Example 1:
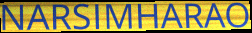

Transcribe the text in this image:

NARSIMHARAO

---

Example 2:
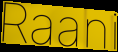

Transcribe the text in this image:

Raani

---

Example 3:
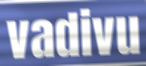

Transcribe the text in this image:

vadivu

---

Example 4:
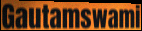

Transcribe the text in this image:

Gautamswami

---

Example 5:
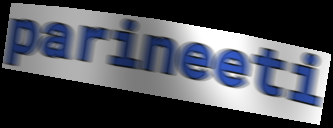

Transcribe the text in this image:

parineeti